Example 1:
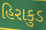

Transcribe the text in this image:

હિરાકુડ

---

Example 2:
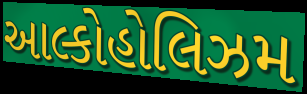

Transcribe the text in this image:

આલ્કોહોલિઝમ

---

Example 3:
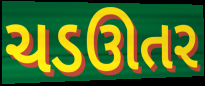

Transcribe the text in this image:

ચડઊતર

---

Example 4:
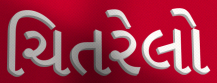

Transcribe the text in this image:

ચિતરેલો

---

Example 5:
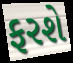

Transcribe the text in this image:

ફરશે